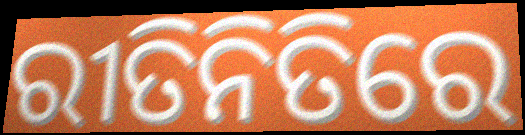
ରୀତିନିତିରେ